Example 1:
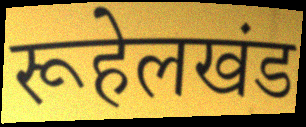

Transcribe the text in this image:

रूहेलखंड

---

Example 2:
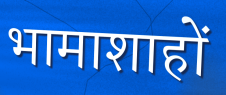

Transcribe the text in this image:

भामाशाहों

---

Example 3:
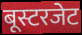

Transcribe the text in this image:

बूस्टरजेट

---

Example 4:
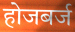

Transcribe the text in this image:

होजबर्ज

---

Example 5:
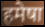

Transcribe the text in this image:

हमेषा